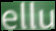
ellu